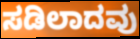
ಸಡಿಲಾದವು